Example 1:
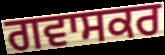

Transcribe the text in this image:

ਗਵਾਸਕਰ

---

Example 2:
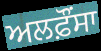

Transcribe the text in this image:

ਅਲਫ਼ੌਂਸਾ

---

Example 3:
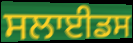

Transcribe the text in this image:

ਸਲਾਈਡਸ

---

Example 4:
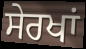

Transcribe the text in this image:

ਸੇਰਖਾਂ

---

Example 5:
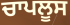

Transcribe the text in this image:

ਚਾਪਲੂਸ